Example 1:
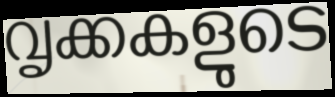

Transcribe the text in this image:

വൃക്കകളുടെ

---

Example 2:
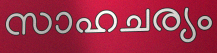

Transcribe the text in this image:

സാഹചര്യം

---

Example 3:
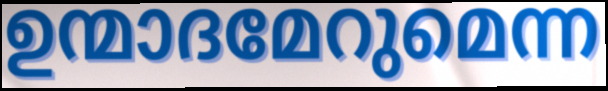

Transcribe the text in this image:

ഉന്മാദമേറുമെന്ന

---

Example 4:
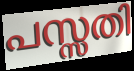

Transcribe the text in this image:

പസ്സതി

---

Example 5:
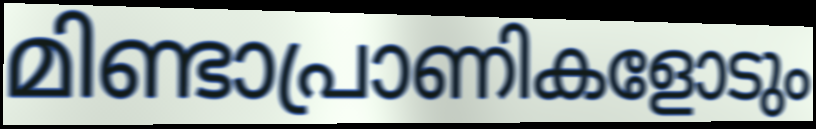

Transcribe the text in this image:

മിണ്ടാപ്രാണികളോടും